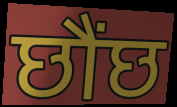
छौंछ